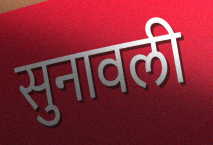
सुनावली